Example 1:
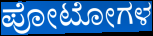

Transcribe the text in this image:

ಪೋಟೋಗಳ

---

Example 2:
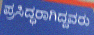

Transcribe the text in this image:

ಪ್ರಸಿದ್ಧರಾಗಿದ್ದವರು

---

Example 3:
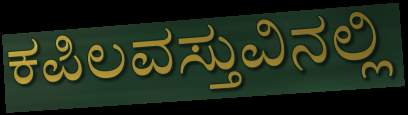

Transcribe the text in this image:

ಕಪಿಲವಸ್ತುವಿನಲ್ಲಿ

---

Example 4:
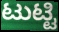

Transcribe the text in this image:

ಟುಟ್ಟಿ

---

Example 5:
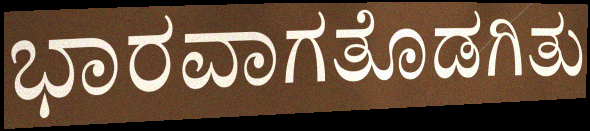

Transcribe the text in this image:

ಭಾರವಾಗತೊಡಗಿತು